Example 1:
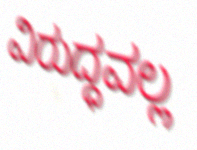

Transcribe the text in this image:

ವಿರುದ್ಧವಲ್ಲ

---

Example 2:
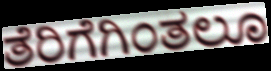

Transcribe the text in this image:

ತೆರಿಗೆಗಿಂತಲೂ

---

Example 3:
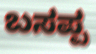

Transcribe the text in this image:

ಬಸಪ್ಪ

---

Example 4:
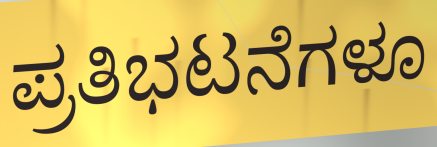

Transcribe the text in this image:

ಪ್ರತಿಭಟನೆಗಳೂ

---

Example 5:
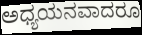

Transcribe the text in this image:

ಅಧ್ಯಯನವಾದರೂ